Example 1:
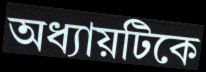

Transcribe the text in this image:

অধ্যায়টিকে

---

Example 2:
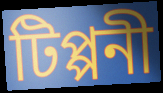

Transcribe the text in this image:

টিপ্পনী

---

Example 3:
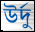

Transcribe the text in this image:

উর্দু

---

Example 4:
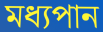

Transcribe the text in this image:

মধ্যপান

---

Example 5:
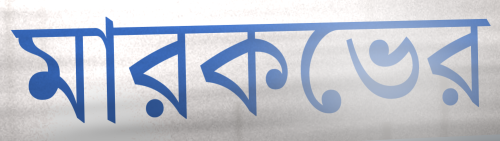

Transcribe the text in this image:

মারকভের